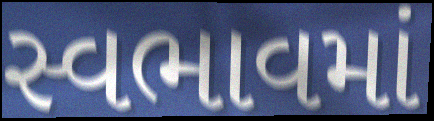
સ્વભાવમાં